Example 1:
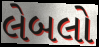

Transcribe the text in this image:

લેબલો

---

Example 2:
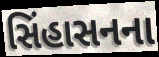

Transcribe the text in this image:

સિંહાસનના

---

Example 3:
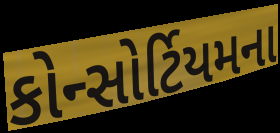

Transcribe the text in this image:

કોન્સોર્ટિયમના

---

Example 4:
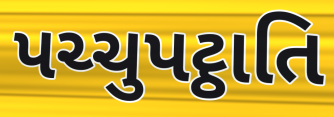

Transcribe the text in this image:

પચ્ચુપટ્ઠાતિ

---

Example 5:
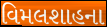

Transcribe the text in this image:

વિમલશાહના